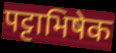
पट्टाभिषेक